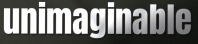
unimaginable